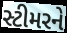
સ્ટીમરને